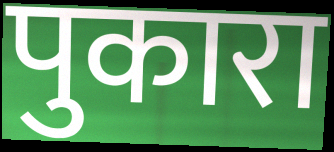
पुकारा